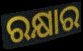
ରକ୍ଷାର